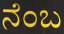
ನೆಂಬ